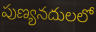
పుణ్యనదులలో